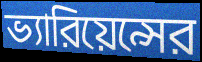
ভ্যারিয়েন্সের